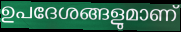
ഉപദേശങ്ങളുമാണ്